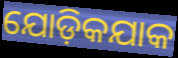
ଯୋଡ଼ିକଯାକ